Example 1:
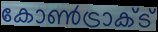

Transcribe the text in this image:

കോൺട്രാക്ട്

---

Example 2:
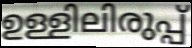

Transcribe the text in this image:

ഉള്ളിലിരുപ്പ്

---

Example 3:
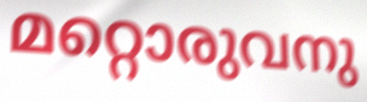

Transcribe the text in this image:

മറ്റൊരുവനു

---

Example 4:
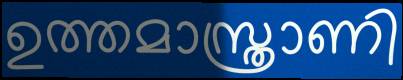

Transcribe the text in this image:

ഉത്തമാസ്ത്രാണി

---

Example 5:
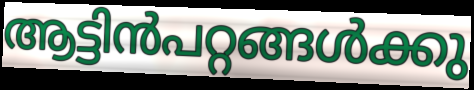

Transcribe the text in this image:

ആട്ടിൻപറ്റങ്ങൾക്കു